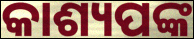
କାଶ୍ୟପଙ୍କ